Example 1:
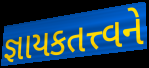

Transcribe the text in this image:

જ્ઞાયકતત્ત્વને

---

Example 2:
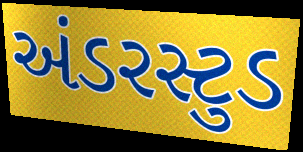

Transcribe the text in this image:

અંડરસ્ટુડ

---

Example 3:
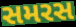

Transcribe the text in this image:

સમરસ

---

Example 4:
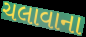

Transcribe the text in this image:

ચલાવાના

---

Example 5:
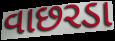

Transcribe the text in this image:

વાછરડા